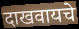
दाखवायचे